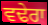
ਵਢੇਰਾ